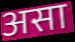
असा